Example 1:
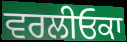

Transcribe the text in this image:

ਵਰਲੀਓਕਾ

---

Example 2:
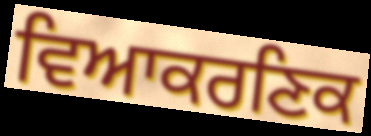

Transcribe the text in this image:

ਵਿਆਕਰਣਿਕ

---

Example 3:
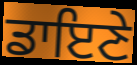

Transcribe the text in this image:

ਡਾਇਣੇ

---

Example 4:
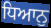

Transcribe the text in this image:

ਧਿਆਨੁ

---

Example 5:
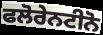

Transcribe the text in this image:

ਫਲੋਰੇਨਟੀਨੋ